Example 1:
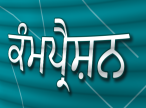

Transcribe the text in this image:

ਕੰਮਪ੍ਰੈਸ਼ਨ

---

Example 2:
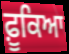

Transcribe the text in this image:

ਫ਼ੂਕਿਆ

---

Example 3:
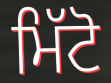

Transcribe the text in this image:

ਮਿੱਟੋ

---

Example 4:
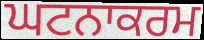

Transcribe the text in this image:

ਘਟਨਾਕਰਮ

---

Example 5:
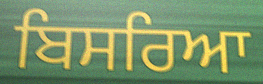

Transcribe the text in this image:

ਬਿਸਰਿਆ